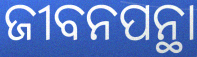
ଜୀବନପନ୍ଥା